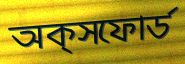
অক্‌সফোর্ড